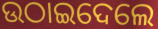
ଉଠାଇଦେଲେ